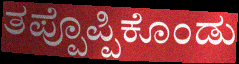
ತಪ್ಪೊಪ್ಪಿಕೊಂಡು